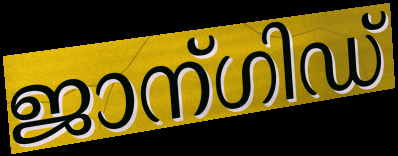
ജാന്ഗിഡ്